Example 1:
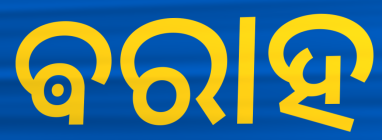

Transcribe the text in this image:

ଵରାହ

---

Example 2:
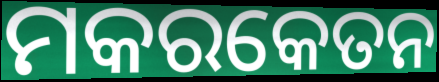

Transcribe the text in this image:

ମକରକେତନ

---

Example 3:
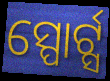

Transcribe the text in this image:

ସ୍ପୋର୍ଟ୍ସ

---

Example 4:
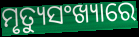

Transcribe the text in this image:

ମୃତ୍ୟୁସଂଖ୍ୟାରେ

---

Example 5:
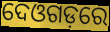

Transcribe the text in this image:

ଦେଓଗଡ଼ରେ